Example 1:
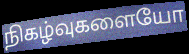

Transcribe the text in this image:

நிகழ்வுகளையோ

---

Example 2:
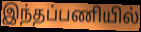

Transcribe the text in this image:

இந்தப்பணியில்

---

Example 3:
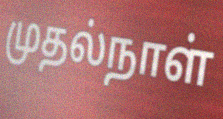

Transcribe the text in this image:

முதல்நாள்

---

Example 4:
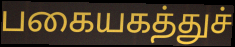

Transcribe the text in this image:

பகையகத்துச்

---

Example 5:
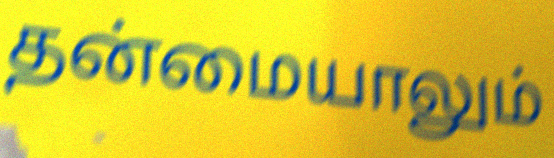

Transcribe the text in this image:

தன்மையாலும்